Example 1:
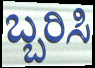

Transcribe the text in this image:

ಬ್ಬರಿಸಿ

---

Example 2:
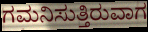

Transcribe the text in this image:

ಗಮನಿಸುತ್ತಿರುವಾಗ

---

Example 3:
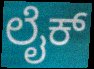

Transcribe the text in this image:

ಲೈಕ್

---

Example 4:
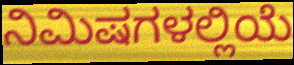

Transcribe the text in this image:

ನಿಮಿಷಗಳಲ್ಲಿಯೆ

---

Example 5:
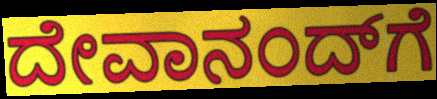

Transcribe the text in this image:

ದೇವಾನಂದ್‌ಗೆ